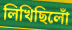
লিখিছিলোঁ